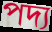
পদ্য